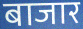
बाजार